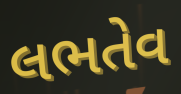
લભતેવ